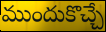
ముందుకొచ్చే